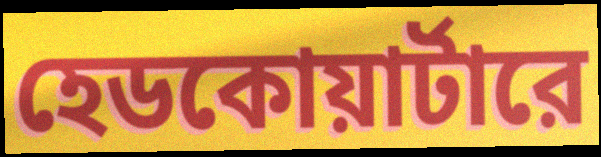
হেডকোয়ার্টারে